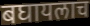
बघायलाच